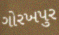
ગોરખપુર